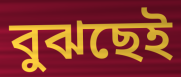
বুঝছেই